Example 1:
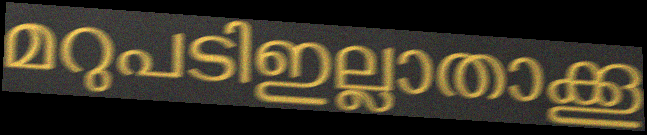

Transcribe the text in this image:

മറുപടിഇല്ലാതാക്കൂ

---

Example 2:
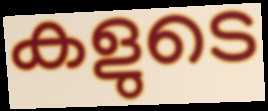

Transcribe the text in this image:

കളുടെ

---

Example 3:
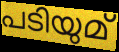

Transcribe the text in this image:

പടിയുമ്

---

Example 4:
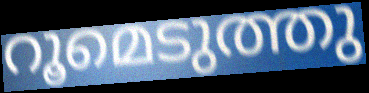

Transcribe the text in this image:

റൂമെടുത്തു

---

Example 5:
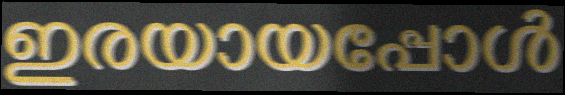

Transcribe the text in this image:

ഇരയായപ്പോൾ